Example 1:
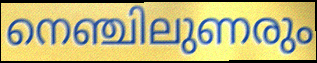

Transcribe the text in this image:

നെഞ്ചിലുണരും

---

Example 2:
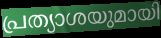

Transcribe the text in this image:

പ്രത്യാശയുമായി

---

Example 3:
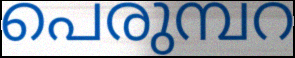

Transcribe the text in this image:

പെരുമ്പറ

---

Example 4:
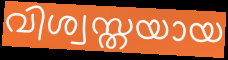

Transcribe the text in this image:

വിശ്വസ്തയായ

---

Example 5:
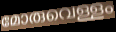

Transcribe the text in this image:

മോരുവെള്ളം